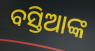
ବସ୍ତିଆଙ୍କ